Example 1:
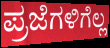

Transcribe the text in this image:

ಪ್ರಜೆಗಳಿಗೆಲ್ಲ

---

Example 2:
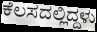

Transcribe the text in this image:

ಕೆಲಸದಲ್ಲಿದ್ದಳು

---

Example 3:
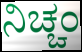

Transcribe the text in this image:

ನಿಚ್ಚಂ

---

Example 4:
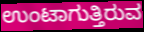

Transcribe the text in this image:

ಉಂಟಾಗುತ್ತಿರುವ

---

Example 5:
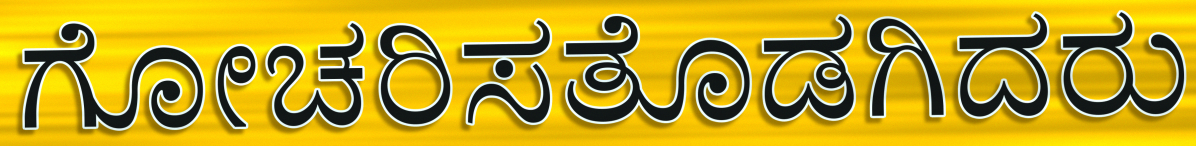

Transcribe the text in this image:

ಗೋಚರಿಸತೊಡಗಿದರು